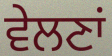
ਵੇਲਣਾਂ